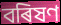
বৰিষণ